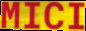
MICI